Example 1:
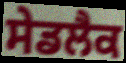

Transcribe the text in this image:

ਸੇਡਲੈਕ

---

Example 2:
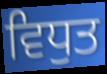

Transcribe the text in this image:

ਵਿਧੁਤ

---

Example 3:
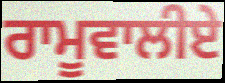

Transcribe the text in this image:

ਰਾਮੂਵਾਲੀਏ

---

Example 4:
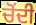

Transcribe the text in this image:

ਚੋੰਦੀ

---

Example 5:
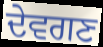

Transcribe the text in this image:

ਦੇਵਗਣ